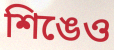
শিঙেও